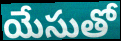
యేసుతో